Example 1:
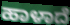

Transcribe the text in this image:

ಹಾಳಾದೆ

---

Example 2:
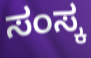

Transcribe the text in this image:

ಸಂಸ್ಕ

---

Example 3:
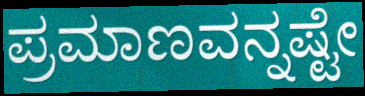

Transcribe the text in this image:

ಪ್ರಮಾಣವನ್ನಷ್ಟೇ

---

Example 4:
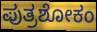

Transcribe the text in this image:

ಪುತ್ರಶೋಕಂ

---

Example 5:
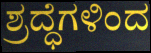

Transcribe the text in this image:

ಶ್ರದ್ಧೆಗಳಿಂದ